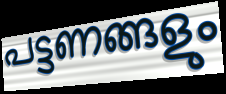
പട്ടണങ്ങളും